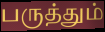
பருத்தும்